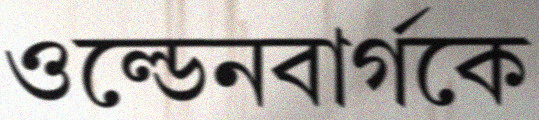
ওল্ডেনবার্গকে